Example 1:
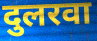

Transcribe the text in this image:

दुलरवा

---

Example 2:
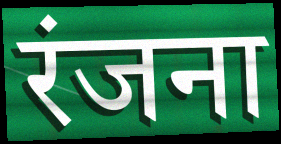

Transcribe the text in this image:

रंजना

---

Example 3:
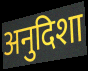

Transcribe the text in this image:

अनुदिशा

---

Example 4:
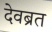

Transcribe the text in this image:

देवब्रत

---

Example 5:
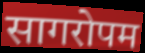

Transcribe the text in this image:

सागरोपम